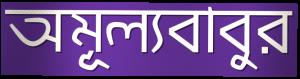
অমূল্যবাবুর